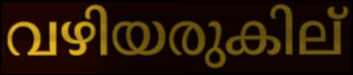
വഴിയരുകില്